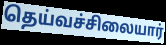
தெய்வச்சிலையார்